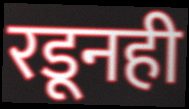
रडूनही